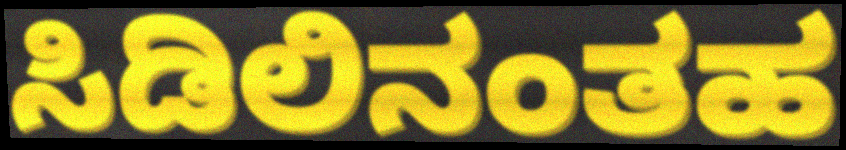
ಸಿಡಿಲಿನಂತಹ